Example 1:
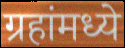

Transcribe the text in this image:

ग्रहांमध्ये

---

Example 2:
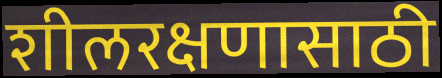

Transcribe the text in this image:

शीलरक्षणासाठी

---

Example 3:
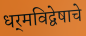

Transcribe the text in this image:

धर्मविद्वेषाचे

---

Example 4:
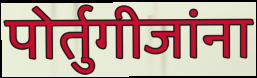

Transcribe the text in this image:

पोर्तुगीजांना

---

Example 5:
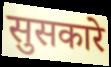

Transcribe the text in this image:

सुसकारे